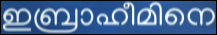
ഇബ്രാഹീമിനെ